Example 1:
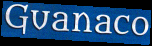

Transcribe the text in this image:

Guanaco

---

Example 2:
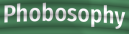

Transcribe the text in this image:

Phobosophy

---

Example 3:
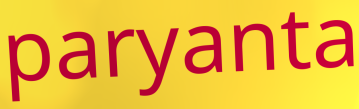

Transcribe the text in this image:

paryanta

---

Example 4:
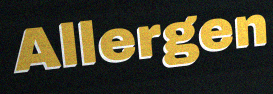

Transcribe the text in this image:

Allergen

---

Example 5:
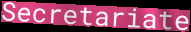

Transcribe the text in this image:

Secretariate